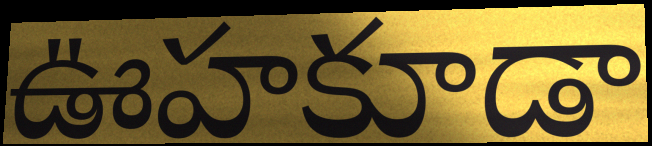
ఊహకూడా